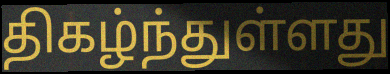
திகழ்ந்துள்ளது